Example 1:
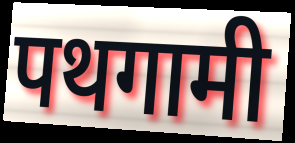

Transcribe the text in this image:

पथगामी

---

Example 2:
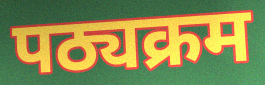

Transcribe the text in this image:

पठ्यक्रम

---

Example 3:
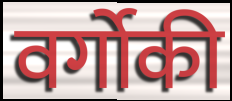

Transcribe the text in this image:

वर्गोकी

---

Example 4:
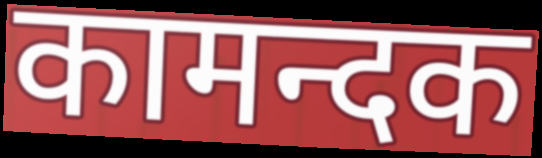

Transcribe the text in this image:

कामन्दक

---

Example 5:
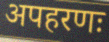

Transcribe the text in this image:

अपहरणः